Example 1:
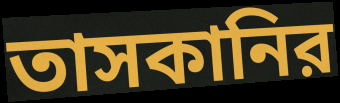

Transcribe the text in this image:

তাসকানির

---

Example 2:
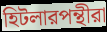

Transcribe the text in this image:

হিটলারপন্থীরা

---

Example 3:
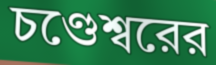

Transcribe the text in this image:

চণ্ডেশ্বরের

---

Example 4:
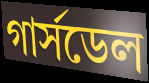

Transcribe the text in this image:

গার্সডেল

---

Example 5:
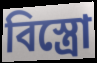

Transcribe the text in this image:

বিস্ত্রো